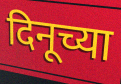
दिनूच्या